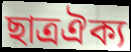
ছাত্রঐক্য